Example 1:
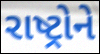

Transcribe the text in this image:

રાષ્ટ્રોને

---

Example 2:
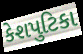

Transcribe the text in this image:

કેશપુટિકા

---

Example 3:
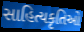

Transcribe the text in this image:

સાહિત્યકૃતિઓ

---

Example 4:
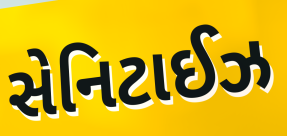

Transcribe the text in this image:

સેનિટાઈઝ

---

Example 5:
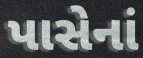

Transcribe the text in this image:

પાસેનાં